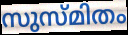
സുസ്മിതം